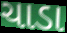
ચાડા